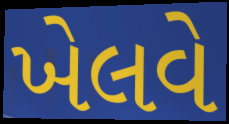
ખેલવે